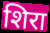
शिरा